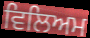
ਵਿਲਿਅਮ